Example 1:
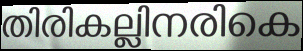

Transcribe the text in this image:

തിരികല്ലിനരികെ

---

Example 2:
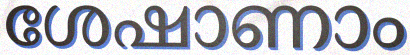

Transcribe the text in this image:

ശേഷാണാം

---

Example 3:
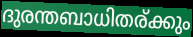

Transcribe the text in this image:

ദുരന്തബാധിതര്ക്കും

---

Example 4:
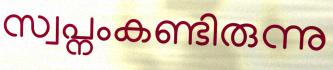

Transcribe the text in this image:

സ്വപ്നംകണ്ടിരുന്നു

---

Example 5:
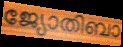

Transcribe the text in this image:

ജ്യോതിബാ